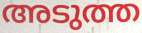
അടുത്ത